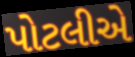
પોટલીએ